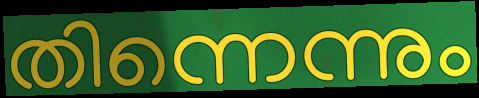
തിന്നെന്നും